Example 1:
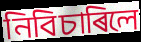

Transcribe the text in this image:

নিবিচাৰিলে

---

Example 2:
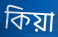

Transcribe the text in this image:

কিয়া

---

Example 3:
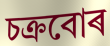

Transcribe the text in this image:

চক্ৰবোৰ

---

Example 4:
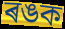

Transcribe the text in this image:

ৰঙক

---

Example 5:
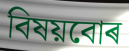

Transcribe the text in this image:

বিষয়বোৰ